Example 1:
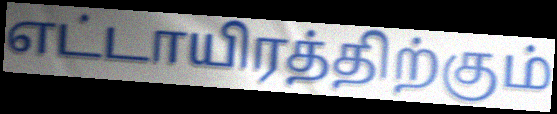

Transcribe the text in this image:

எட்டாயிரத்திற்கும்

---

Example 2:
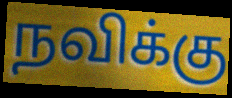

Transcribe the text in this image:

நவிக்கு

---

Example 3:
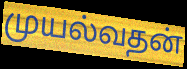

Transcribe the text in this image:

முயல்வதன்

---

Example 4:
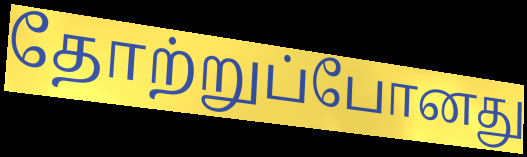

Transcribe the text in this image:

தோற்றுப்போனது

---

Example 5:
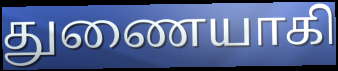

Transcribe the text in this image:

துணையாகி